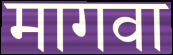
मागवा